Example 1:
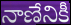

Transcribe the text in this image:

నాణేనికీ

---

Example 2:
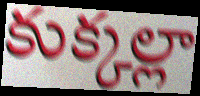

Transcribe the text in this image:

కుక్కల్లా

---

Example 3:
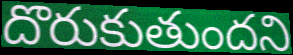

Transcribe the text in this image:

దొరుకుతుందని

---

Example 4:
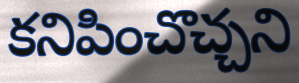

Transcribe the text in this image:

కనిపించొచ్చని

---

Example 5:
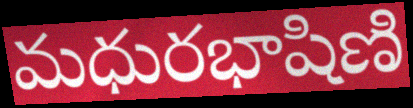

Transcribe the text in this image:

మధురభాషిణి